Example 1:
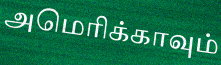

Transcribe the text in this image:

அமெரிக்காவும்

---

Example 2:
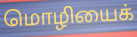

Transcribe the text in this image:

மொழியைக்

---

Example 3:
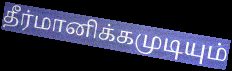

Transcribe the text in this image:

தீர்மானிக்கமுடியும்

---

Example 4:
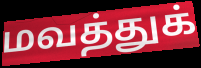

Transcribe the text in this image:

மவத்துக்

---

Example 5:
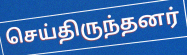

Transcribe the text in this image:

செய்திருந்தனர்